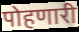
पोहणारी